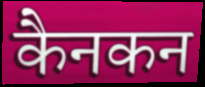
कैनकन